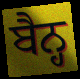
ਬੈਨ੍ਹ